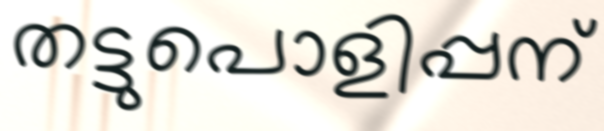
തട്ടുപൊളിപ്പന്